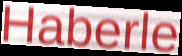
Haberle